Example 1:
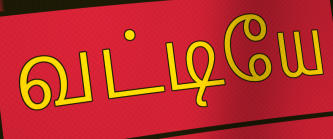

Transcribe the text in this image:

வட்டியே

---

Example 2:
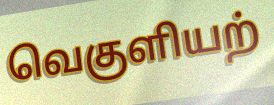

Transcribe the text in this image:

வெகுளியற்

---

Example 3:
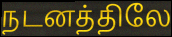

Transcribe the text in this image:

நடனத்திலே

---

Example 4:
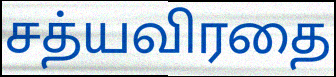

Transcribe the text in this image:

சத்யவிரதை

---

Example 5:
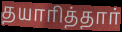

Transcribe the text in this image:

தயாரித்தார்